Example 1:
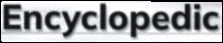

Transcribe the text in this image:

Encyclopedic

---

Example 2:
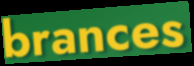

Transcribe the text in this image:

brances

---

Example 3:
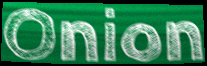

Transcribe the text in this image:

Onion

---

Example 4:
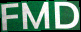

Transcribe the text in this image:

FMD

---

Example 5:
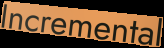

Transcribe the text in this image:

Incremental